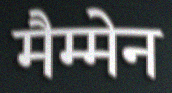
मैम्मेन